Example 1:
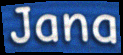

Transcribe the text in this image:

Jana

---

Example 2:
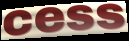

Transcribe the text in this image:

cess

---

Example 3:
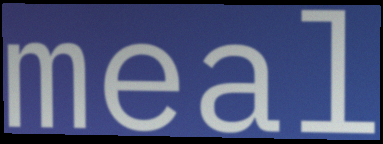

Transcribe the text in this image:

meal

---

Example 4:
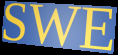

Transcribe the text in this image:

SWE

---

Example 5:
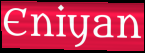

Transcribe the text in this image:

Eniyan